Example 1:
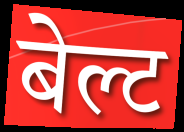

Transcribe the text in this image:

बेल्ट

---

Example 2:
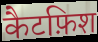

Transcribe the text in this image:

कैटफ़िश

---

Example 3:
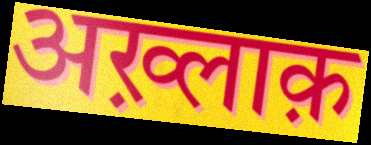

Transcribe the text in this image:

अख़्लाक़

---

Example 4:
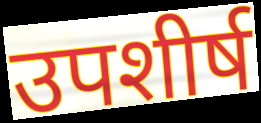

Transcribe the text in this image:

उपशीर्ष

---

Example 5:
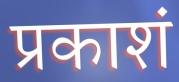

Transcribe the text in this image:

प्रकाशं